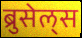
ब्रुसेल्स